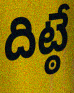
దిట్ఠే